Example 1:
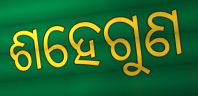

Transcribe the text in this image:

ଶହେଗୁଣ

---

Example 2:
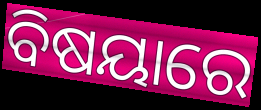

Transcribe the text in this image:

ବିଷୟାରେ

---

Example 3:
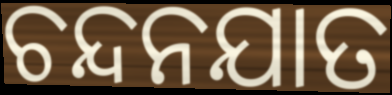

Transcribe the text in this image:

ଚନ୍ଦନଯାତ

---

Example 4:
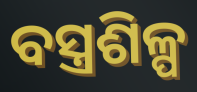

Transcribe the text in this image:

ବସ୍ତ୍ରଶିଳ୍ପ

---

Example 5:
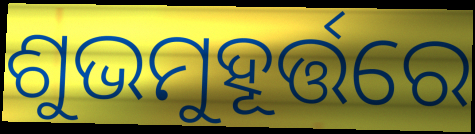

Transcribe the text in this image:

ଶୁଭମୁହୂର୍ତ୍ତରେ